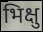
भिक्षु